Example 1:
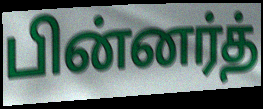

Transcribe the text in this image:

பின்னர்த்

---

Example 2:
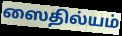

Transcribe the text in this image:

ஸைதில்யம்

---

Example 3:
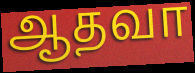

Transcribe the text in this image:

ஆதவா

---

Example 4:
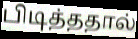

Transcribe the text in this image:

பிடித்ததால்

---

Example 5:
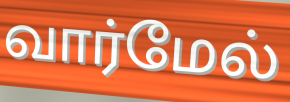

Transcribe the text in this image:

வார்மேல்